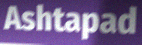
Ashtapad